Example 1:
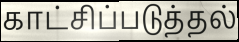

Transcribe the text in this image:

காட்சிப்படுத்தல்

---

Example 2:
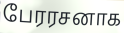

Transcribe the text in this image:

பேரரசனாக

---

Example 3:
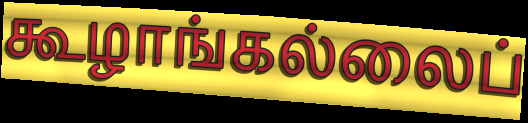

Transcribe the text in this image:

கூழாங்கல்லைப்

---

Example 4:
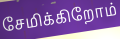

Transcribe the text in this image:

சேமிக்கிறோம்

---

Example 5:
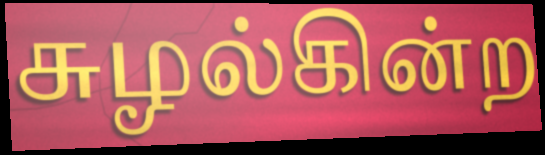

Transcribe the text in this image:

சுழல்கின்ற